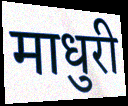
माधुरी